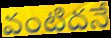
వంటిదనే